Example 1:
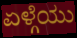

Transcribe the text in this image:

ಏಳ್ಗೆಯು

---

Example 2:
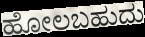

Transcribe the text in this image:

ಹೋಲಬಹುದು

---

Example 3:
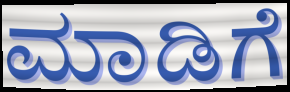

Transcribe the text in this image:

ಮಾಡಿಗೆ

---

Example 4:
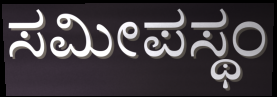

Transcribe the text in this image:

ಸಮೀಪಸ್ಥಂ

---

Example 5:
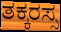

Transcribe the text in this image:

ತಕ್ಕರಸ್ಸ